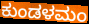
ಕುಂಡಳಮಂ